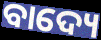
ବାଦ୍ୟେ